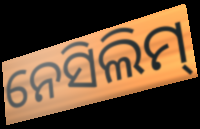
ନେସିଲିମ୍